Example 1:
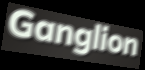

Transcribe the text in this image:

Ganglion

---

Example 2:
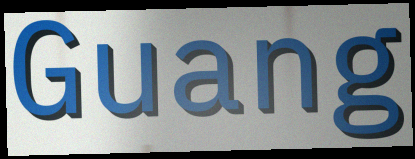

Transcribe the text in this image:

Guang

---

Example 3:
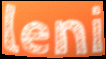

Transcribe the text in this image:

leni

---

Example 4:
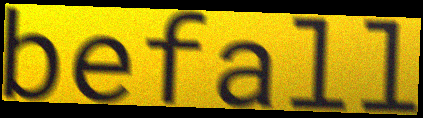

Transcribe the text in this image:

befall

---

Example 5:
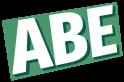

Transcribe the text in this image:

ABE